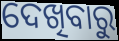
ଦେଖିବାରୁ